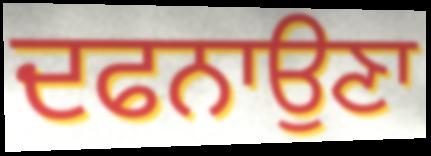
ਦਫਨਾਉਣਾ